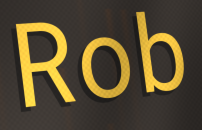
Rob